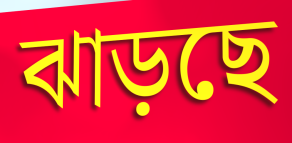
ঝাড়ছে